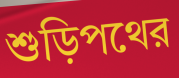
শুড়িপথের